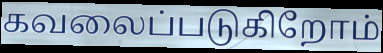
கவலைப்படுகிறோம்